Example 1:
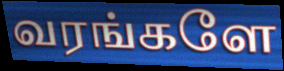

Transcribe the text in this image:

வரங்களே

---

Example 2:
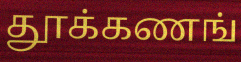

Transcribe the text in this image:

தூக்கணங்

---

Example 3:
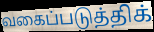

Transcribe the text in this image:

வகைப்படுத்திக்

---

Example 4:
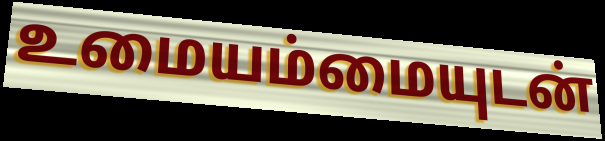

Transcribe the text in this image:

உமையம்மையுடன்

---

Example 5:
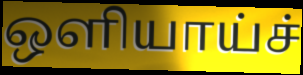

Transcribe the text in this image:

ஒளியாய்ச்